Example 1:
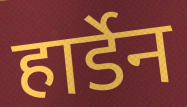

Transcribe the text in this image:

हार्डेन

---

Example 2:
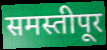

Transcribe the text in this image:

समस्तीपूर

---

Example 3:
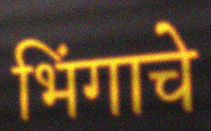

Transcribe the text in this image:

भिंगाचे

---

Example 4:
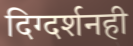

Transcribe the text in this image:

दिग्दर्शनही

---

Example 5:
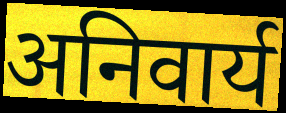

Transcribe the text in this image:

अनिवार्य